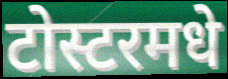
टोस्टरमधे